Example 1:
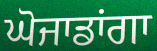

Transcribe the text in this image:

ਘੋਜਾਡਾਂਗਾ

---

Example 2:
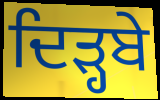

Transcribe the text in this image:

ਦਿੜ੍ਹਬੇ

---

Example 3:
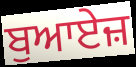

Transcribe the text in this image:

ਬੁਆਏਜ਼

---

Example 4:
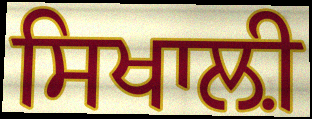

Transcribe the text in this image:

ਸਿਖਾਲ਼ੀ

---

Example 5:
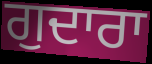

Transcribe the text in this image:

ਗੁਦਾਰਾ